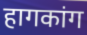
हागकांग